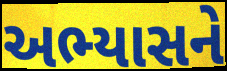
અભ્યાસને